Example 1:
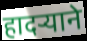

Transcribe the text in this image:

हादऱ्याने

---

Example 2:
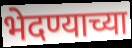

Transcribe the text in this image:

भेदण्याच्या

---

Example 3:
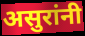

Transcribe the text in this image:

असुरांनी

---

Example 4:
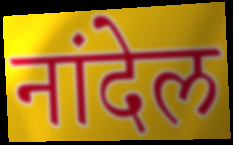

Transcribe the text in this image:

नांदेल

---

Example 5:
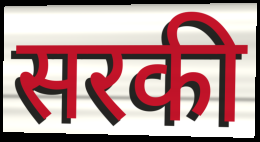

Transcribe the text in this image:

सरकी